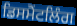
ਡਿਸਮੈਂਟਲਿੰਗ